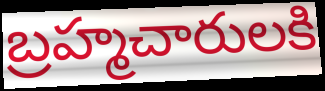
బ్రహ్మచారులకి